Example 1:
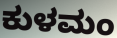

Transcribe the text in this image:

ಕುಳಮಂ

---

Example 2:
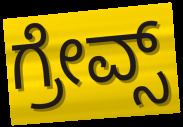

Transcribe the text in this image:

ಗ್ರೇವ್ಸ್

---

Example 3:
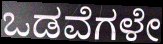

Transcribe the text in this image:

ಒಡವೆಗಳೇ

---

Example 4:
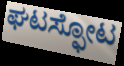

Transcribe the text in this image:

ಘಟಸ್ಫೋಟ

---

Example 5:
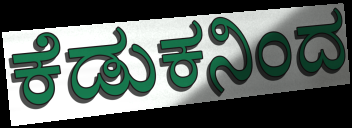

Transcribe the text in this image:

ಕೆಡುಕನಿಂದ